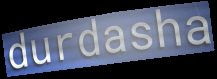
durdasha